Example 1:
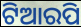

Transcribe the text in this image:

ଟିଆରପି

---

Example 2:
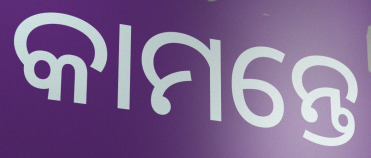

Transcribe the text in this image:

କାମନ୍ତେ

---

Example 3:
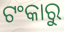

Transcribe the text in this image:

ଟଂକାରୁ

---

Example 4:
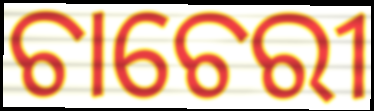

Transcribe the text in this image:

ଚାଚେରୀ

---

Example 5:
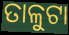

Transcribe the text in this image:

ତାଳୁଟା